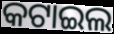
କଟାଇଲ